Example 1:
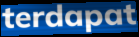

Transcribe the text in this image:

terdapat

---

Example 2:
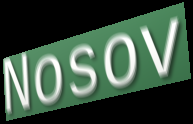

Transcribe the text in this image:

Nosov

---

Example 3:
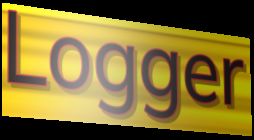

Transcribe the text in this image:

Logger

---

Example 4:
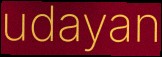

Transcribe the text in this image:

udayan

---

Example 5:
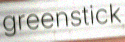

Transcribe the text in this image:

greenstick